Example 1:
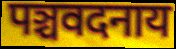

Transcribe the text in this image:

पञ्चवदनाय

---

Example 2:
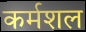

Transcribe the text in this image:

कर्मशल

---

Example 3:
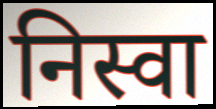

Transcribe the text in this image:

निस्वा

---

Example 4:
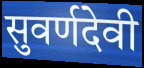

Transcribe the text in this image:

सुवर्णदेवी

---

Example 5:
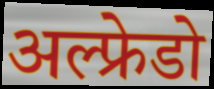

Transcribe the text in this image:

अल्फ्रेडो